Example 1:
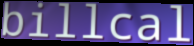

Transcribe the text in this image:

billcal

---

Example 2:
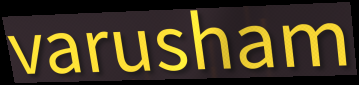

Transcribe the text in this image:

varusham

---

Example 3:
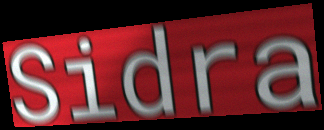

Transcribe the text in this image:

Sidra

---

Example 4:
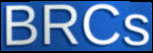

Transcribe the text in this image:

BRCs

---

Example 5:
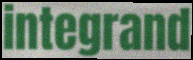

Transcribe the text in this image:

integrand